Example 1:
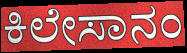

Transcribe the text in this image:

ಕಿಲೇಸಾನಂ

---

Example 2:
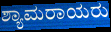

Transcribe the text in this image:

ಶ್ಯಾಮರಾಯರು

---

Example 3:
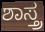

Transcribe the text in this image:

ಶಾಸ್ತ್ರ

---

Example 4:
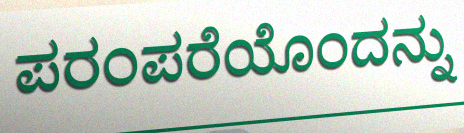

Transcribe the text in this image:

ಪರಂಪರೆಯೊಂದನ್ನು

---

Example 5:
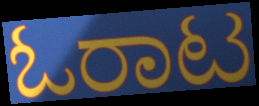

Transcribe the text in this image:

ಓರಾಟ